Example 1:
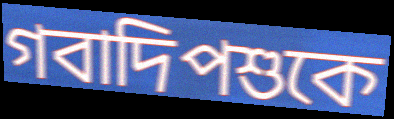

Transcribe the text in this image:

গবাদিপশুকে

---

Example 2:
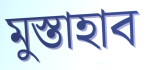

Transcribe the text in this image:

মুস্তাহাব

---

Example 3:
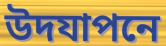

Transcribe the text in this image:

উদযাপনে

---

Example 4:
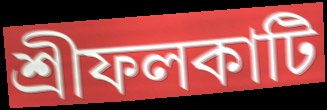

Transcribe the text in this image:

শ্রীফলকাটি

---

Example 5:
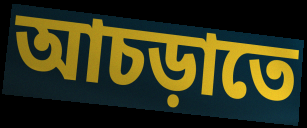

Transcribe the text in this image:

আচড়াতে